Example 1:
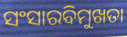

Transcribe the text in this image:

ସଂସାରବିମୁଖତା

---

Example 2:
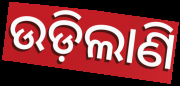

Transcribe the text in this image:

ଉଡ଼ିଲାଣି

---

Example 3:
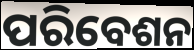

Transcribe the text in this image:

ପରିବେଶନ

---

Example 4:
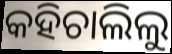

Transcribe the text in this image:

କହିଚାଲିଲୁ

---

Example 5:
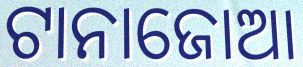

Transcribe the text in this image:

ଟାନାଜୋଆ